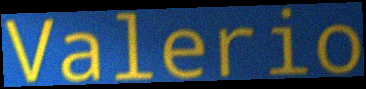
Valerio